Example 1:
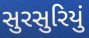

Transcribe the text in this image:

સુરસુરિયું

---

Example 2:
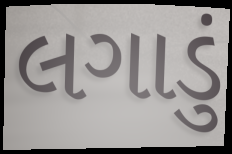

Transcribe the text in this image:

લગાડું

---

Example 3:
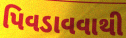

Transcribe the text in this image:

પિવડાવવાથી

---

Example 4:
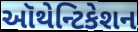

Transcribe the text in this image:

ઑથેન્ટિકેશન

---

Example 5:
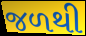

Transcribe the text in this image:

જળથી